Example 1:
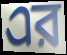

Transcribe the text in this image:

এর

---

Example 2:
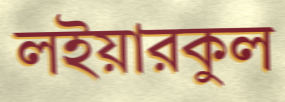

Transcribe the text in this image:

লইয়ারকুল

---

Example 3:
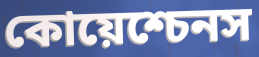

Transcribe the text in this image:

কোয়েশ্চেনস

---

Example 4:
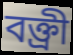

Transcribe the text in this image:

বক্ত্রী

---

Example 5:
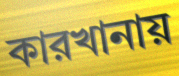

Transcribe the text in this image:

কারখানায়